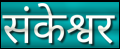
संकेश्वर